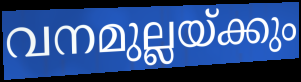
വനമുല്ലയ്ക്കും